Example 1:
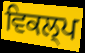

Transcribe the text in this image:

ਵਿਕਲ੍ਪ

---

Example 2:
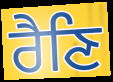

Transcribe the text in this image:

ਰੈਣਿ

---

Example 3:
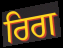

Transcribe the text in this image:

ਰਿਗ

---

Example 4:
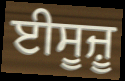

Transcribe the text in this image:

ਈਸੂਜ਼ੂ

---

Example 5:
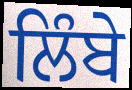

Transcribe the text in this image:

ਲਿੰਬੇ